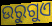
ଉରୁଗୁଏ